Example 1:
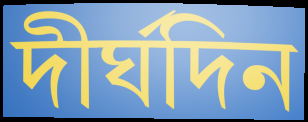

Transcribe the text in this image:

দীৰ্ঘদিন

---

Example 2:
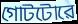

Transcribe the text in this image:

গোটটোৱে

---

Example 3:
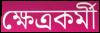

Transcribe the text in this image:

ক্ষেত্ৰকৰ্মী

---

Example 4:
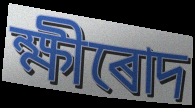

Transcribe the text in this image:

ক্ষীৰোদ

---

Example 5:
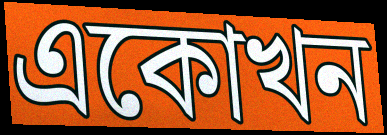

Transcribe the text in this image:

একোখন